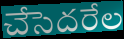
చేసెదరేల